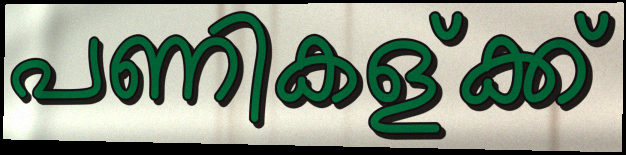
പണികള്ക്ക്